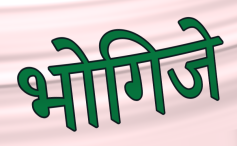
भोगिजे